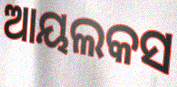
ଆୟଲକସ